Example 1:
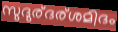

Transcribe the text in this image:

സുദുര്ദര്ശമിദം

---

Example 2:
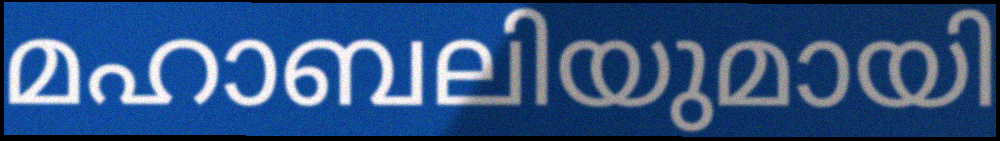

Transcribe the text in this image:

മഹാബലിയുമായി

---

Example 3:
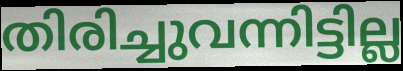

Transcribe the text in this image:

തിരിച്ചുവന്നിട്ടില്ല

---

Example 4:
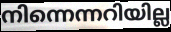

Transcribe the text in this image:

നിന്നെന്നറിയില്ല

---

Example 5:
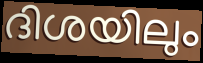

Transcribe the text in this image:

ദിശയിലും